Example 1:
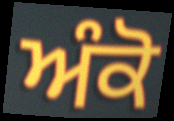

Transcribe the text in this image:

ਅੰਕੋ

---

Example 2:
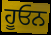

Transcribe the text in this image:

ਹੂਓਨ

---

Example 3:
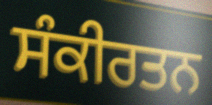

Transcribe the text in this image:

ਸੰਕੀਰਤਨ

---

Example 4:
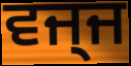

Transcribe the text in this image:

ਵਜ੍ਜ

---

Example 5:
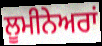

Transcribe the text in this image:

ਲੂਮੀਨੇਅਰਾਂ